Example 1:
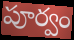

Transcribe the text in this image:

పూర్వం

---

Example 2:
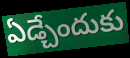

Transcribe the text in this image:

ఏడ్చేందుకు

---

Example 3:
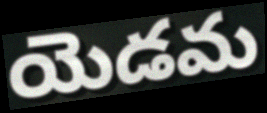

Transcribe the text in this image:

యెడమ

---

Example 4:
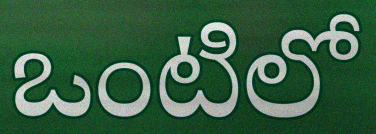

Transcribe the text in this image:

ఒంటిలో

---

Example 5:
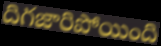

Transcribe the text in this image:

దిగజారిపోయింది